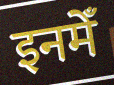
इनमेँ